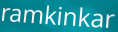
ramkinkar